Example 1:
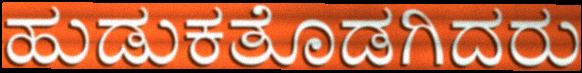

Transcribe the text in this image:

ಹುಡುಕತೊಡಗಿದರು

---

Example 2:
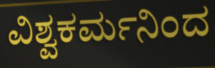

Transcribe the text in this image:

ವಿಶ್ವಕರ್ಮನಿಂದ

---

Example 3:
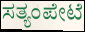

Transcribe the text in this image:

ಸತ್ಯಂಪೇಟೆ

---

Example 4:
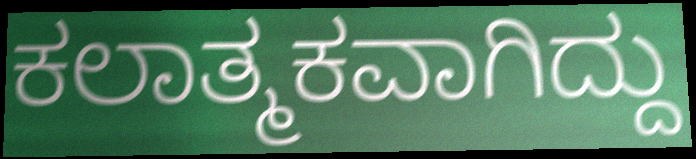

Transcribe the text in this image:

ಕಲಾತ್ಮಕವಾಗಿದ್ದು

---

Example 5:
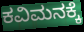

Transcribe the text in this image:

ಕವಿಮನಕ್ಕೆ